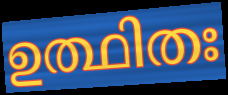
ഉത്ഥിതഃ